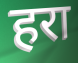
हरा